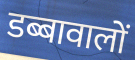
डब्बावालों